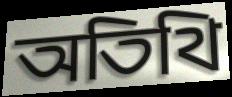
অতিথি